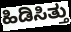
ಹಿಡಿಸಿತ್ತು